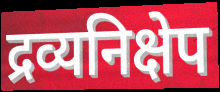
द्रव्यनिक्षेप